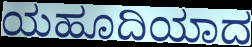
ಯಹೂದಿಯಾದ